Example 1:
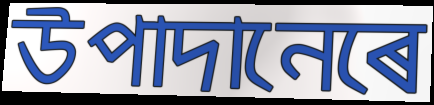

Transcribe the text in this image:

উপাদানেৰে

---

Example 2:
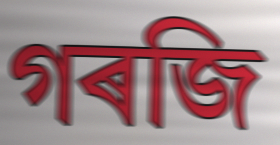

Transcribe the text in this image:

গৰজি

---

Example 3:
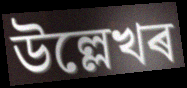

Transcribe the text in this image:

উল্লেখৰ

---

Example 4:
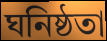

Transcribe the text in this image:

ঘনিষ্ঠতা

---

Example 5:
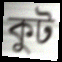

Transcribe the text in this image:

কুট